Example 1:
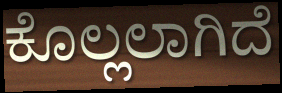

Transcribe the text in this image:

ಕೊಲ್ಲಲಾಗಿದೆ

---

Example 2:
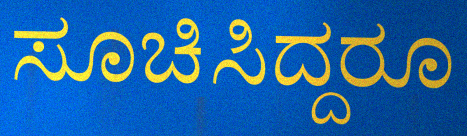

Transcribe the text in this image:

ಸೂಚಿಸಿದ್ದರೂ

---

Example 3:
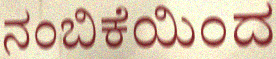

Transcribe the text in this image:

ನಂಬಿಕೆಯಿಂದ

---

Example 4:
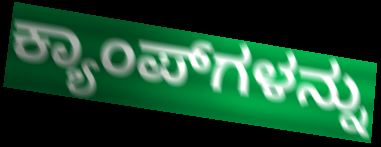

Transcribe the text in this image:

ಕ್ಯಾಂಪ್‍ಗಳನ್ನು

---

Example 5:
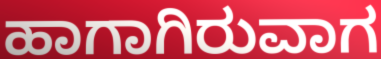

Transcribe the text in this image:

ಹಾಗಾಗಿರುವಾಗ